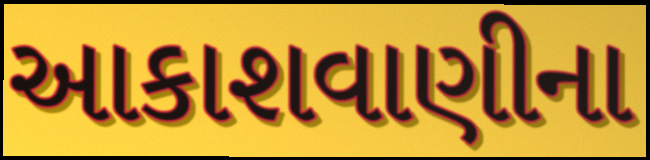
આકાશવાણીના